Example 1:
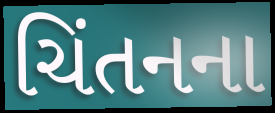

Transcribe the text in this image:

ચિંતનના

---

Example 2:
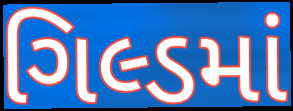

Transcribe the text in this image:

ગિલ્ડમાં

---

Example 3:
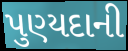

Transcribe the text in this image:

પુણ્યદાની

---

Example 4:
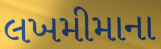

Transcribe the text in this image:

લખમીમાના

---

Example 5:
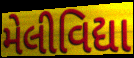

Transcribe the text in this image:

મેલીવિદ્યા